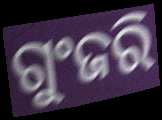
ଗୁଂଜରି